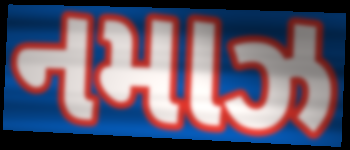
નમાઝ